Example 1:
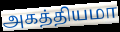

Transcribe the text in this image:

அகத்தியமா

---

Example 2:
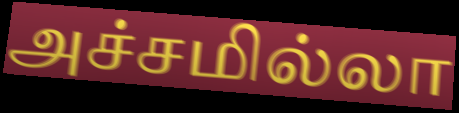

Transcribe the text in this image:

அச்சமில்லா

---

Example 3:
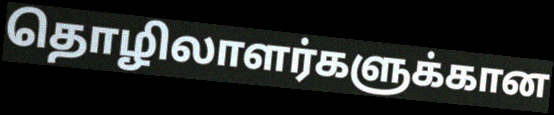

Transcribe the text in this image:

தொழிலாளர்களுக்கான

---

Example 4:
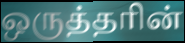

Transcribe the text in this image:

ஒருத்தரின்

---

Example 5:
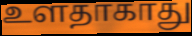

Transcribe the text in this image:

உளதாகாது